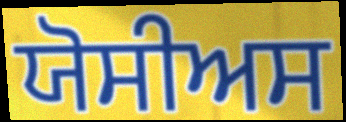
ਯੋਸੀਅਸ